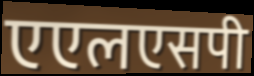
एएलएसपी